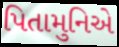
પિતામુનિએ